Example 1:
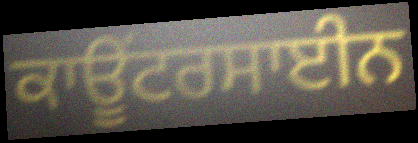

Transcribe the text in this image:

ਕਾਊਂਟਰਸਾਈਨ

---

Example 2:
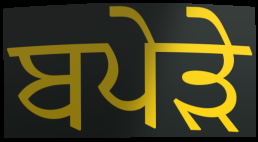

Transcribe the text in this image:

ਬਪੇੜੇ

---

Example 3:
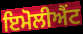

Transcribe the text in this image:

ਇਮੋਲੀਐਂਟ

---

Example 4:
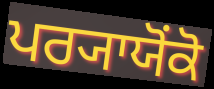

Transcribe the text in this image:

ਪਰ੍ਯਾਯੋਂਕੋ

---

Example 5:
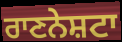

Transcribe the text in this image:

ਰਾਣਨੇਸ਼ਟਾ